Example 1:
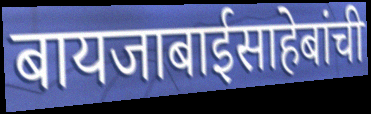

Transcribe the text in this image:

बायजाबाईसाहेबांची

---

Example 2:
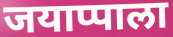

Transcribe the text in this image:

जयाप्पाला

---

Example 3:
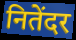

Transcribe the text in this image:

नितेंदर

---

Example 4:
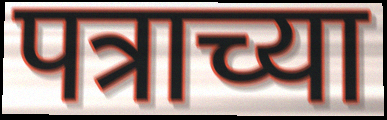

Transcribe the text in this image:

पत्राच्या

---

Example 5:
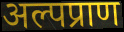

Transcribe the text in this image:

अल्पप्राण